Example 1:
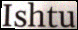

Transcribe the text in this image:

Ishtu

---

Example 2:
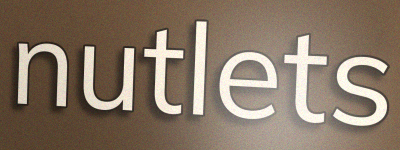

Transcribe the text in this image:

nutlets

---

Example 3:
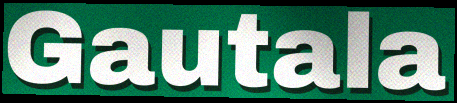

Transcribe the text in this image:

Gautala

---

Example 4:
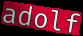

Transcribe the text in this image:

adolf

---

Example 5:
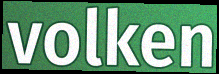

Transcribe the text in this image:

volken